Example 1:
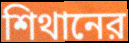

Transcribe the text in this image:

শিথানের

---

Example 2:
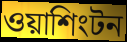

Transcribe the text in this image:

ওয়াশিংটন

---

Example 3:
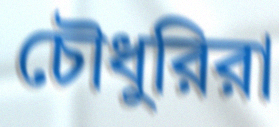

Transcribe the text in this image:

চৌধুরিরা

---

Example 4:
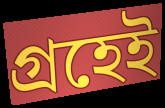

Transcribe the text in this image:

গ্রহেই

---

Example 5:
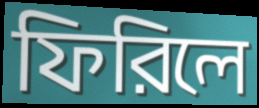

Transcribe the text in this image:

ফিরিলে